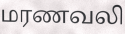
மரணவலி